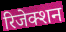
रिजेक्शन